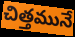
చిత్తమునే